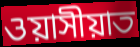
ওয়াসীয়াত